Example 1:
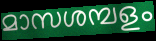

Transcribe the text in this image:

മാസശമ്പളം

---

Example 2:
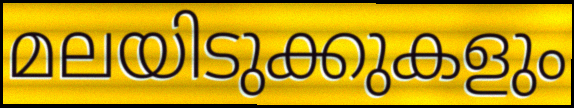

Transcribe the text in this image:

മലയിടുക്കുകളും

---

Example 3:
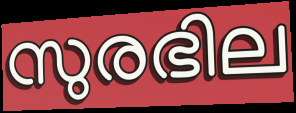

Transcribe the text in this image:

സുരഭില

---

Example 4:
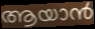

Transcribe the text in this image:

ആയാൻ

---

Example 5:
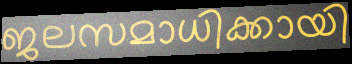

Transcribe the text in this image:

ജലസമാധിക്കായി